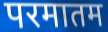
परमातम